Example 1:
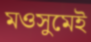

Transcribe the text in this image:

মওসুমেই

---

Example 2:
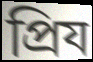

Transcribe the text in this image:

প্রিয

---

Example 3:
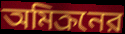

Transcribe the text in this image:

অমিক্রনের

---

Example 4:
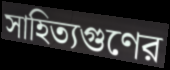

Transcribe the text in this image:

সাহিত্যগুণের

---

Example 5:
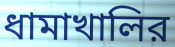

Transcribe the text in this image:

ধামাখালির